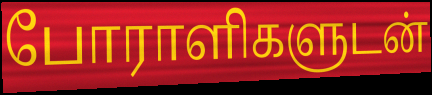
போராளிகளுடன்